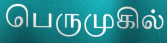
பெருமுகில்